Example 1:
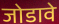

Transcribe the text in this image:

जोडावे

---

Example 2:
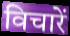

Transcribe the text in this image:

विचारें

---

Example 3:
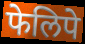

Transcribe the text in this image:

फेलिपे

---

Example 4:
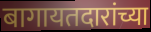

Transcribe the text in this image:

बागायतदारांच्या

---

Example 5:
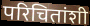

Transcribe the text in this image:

परिचितांशी